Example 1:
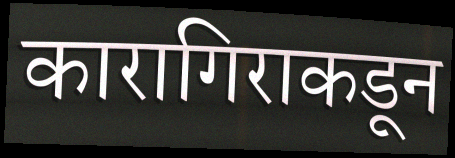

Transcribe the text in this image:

कारागिराकडून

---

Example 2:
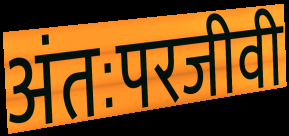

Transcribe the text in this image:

अंतःपरजीवी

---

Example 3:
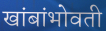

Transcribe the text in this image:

खांबांभोवती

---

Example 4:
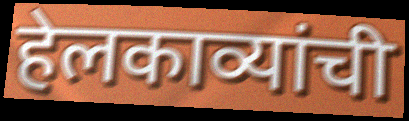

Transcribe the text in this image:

हेलकाव्यांची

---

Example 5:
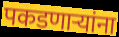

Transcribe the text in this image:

पकडणाऱ्यांना